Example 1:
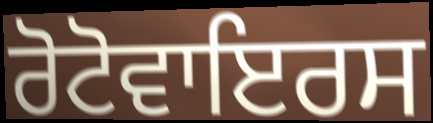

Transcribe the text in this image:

ਰੋਟੋਵਾਇਰਸ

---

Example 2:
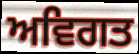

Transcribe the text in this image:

ਅਵਿਗਤ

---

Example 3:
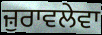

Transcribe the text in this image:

ਜ਼ੁਰਾਵਲੇਵਾ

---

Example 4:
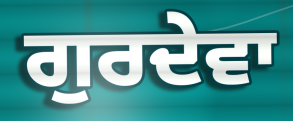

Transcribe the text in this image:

ਗੁਰਦੇਵਾ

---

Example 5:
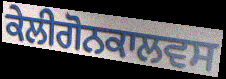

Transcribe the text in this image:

ਕੇਲੀਗੋਨਕਾਲਵਸ